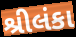
શ્રીલંકા